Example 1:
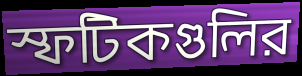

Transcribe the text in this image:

স্ফটিকগুলির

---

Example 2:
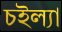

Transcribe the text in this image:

চইল্যা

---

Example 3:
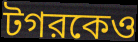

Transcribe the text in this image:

টগরকেও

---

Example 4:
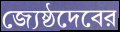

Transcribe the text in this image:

জ্যেষ্ঠদেবের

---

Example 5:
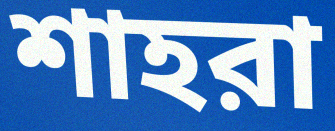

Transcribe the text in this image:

শাহরা